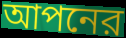
আপনের